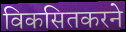
विकसितकरने